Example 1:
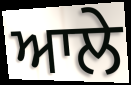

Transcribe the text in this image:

ਆਲੇ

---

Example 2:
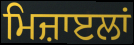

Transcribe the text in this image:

ਮਿਜ਼ਾੲਲਾਂ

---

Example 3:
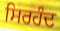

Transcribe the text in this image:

ਸਿਰਹੰਦ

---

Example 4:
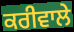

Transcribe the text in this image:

ਕਰੀਵਾਲੇ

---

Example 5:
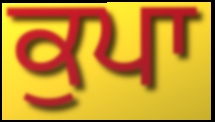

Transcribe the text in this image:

ਕੁਪਾ